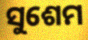
ସୁଶେମ